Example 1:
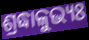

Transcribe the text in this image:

ଶ୍ରଦ୍ଧାଳୁଭ୍ୟଃ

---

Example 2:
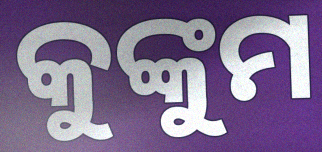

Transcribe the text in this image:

କୁଙ୍କୁମ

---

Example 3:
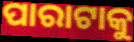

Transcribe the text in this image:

ପାରାଟାକୁ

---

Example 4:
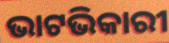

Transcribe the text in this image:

ଭାଟଭିକାରୀ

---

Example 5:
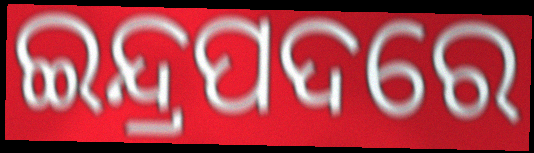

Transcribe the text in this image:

ଇନ୍ଦ୍ରପଦରେ